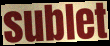
sublet